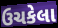
ઉચકેલા